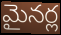
మైనర్ల